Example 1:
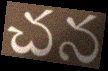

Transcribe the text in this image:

చన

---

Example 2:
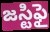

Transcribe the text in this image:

జస్టిఫై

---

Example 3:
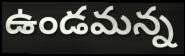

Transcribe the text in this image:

ఉండమన్న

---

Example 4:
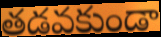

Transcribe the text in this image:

తడవకుండా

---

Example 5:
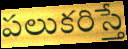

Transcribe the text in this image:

పలుకరిస్తే